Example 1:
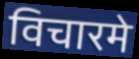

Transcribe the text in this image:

विचारमे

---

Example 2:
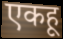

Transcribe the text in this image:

एकहू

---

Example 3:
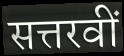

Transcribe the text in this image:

सत्तरवीं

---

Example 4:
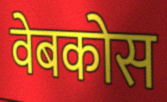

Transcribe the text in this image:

वेबकोस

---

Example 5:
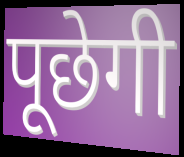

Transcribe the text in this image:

पूछेगी